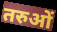
तरुओं